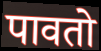
पावतो